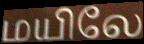
மயிலே